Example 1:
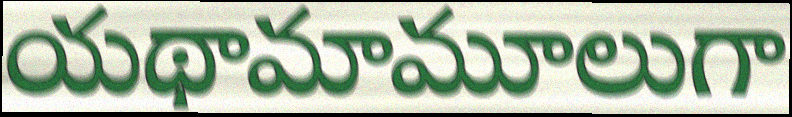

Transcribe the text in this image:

యథామామూలుగా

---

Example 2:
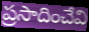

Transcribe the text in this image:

ప్రసాదించేవి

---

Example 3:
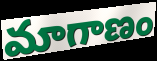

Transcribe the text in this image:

మాగాణం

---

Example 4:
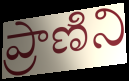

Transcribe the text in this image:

ప్రాణిని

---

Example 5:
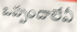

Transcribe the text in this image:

ఒప్పందాలేవీ